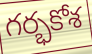
గర్భకోశ